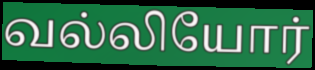
வல்லியோர்